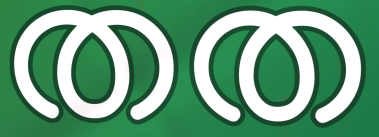
തത